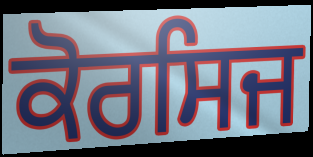
ਕੋਰਸਿਜ